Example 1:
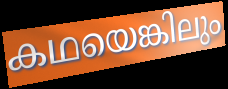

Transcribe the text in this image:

കഥയെങ്കിലും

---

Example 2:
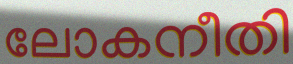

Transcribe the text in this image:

ലോകനീതി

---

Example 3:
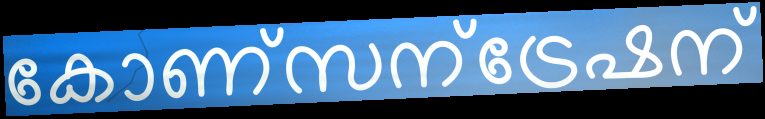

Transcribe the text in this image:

കോണ്സന്ട്രേഷന്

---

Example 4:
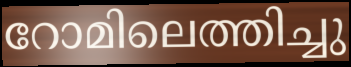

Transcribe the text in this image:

റോമിലെത്തിച്ചു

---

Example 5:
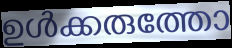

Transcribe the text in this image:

ഉൾക്കരുത്തോ